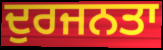
ਦੁਰਜਨਤਾ